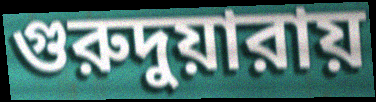
গুরুদুয়ারায়